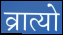
व्रात्यो